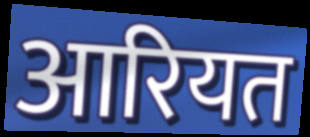
आरियत